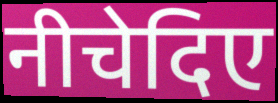
नीचेदिए